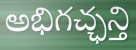
అభిగచ్ఛన్తి